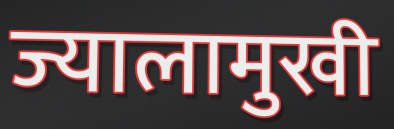
ज्यालामुखी